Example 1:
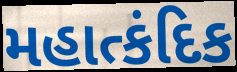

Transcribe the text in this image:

મહાત્કંદિક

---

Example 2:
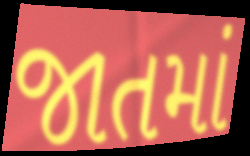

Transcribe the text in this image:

જાતમાં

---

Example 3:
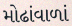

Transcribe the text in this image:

મોઢાંવાળાં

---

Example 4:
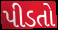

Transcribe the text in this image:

પીડતો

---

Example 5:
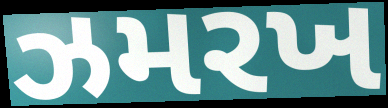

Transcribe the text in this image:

ઝમરખ